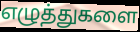
எழுத்துகளை